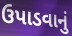
ઉપાડવાનું